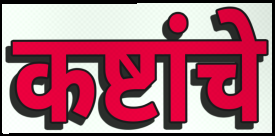
कष्टांचे